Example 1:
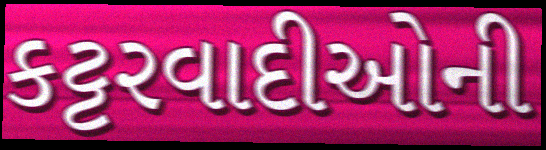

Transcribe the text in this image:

કટ્ટરવાદીઓની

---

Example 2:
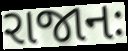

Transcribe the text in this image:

રાજાનઃ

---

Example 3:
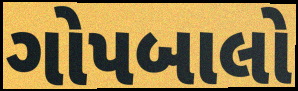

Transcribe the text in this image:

ગોપબાલો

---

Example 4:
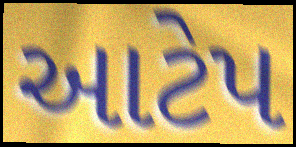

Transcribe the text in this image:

આટેપ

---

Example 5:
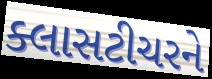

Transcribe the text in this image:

ક્લાસટીચરને